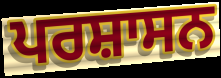
ਪਰਸ਼ਾਸਨ